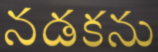
నడకను